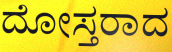
ದೋಸ್ತರಾದ